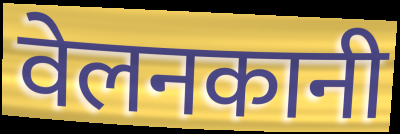
वेलनकानी